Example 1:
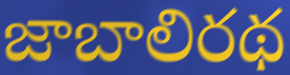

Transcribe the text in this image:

జాబాలిరథ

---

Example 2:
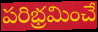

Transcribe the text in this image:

పరిభ్రమించే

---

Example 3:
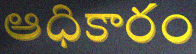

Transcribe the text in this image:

ఆధికారం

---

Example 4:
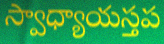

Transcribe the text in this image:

స్వాధ్యాయస్తప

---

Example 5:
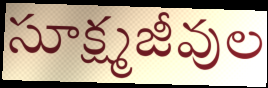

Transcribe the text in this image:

సూక్ష్మజీవుల